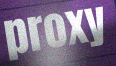
proxy